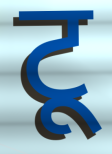
टू